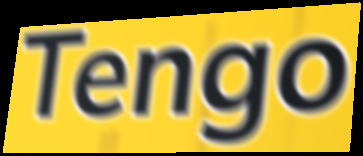
Tengo